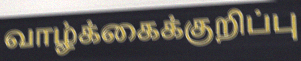
வாழ்க்கைக்குறிப்பு